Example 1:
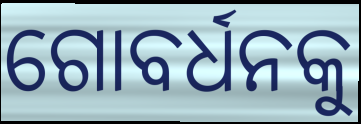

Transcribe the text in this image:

ଗୋବର୍ଧନକୁ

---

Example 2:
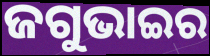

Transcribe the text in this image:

ଜଗୁଭାଇର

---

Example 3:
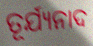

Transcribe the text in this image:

ତୂର୍ଯ୍ୟନାଦ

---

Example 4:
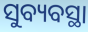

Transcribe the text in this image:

ସୁବ୍ୟବସ୍ଥା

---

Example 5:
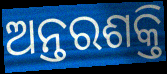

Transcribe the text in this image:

ଅନ୍ତରଶକ୍ତି